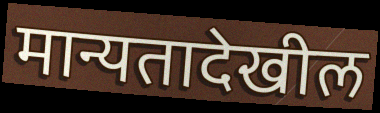
मान्यतादेखील